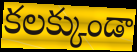
కలక్కుండా